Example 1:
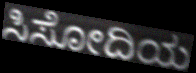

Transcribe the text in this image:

ಸಿಸೋದಿಯ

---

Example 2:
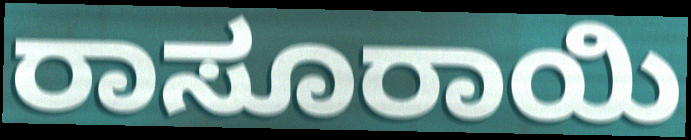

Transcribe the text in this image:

ರಾಸೂರಾಯಿ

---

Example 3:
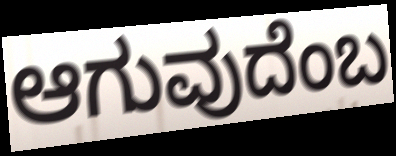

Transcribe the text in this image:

ಆಗುವುದೆಂಬ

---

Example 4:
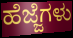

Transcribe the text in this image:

ಹೆಜ್ಜೆಗಳು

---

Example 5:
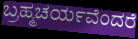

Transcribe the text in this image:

ಬ್ರಹ್ಮಚರ್ಯವೆಂದರೆ